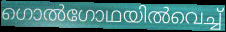
ഗൊൽഗോഥയിൽവെച്ച്